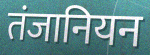
तंजानियन